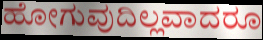
ಹೋಗುವುದಿಲ್ಲವಾದರೂ